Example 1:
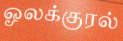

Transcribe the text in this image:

ஓலக்குரல்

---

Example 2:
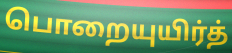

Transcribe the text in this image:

பொறையுயிர்த்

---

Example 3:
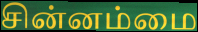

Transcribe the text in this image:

சின்னம்மை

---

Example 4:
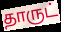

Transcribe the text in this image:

தாருட்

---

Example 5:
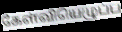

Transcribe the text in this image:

கேள்வியெழுப்ப